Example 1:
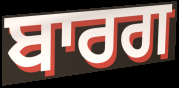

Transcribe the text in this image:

ਬਾਰਗ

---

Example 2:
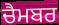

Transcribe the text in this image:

ਚੈਮਬਰ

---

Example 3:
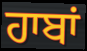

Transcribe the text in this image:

ਹਾਬਾਂ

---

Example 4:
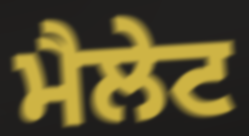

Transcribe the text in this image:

ਮੈਲੇਟ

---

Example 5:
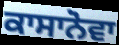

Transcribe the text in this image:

ਕਾਸਾਨੋਵਾ